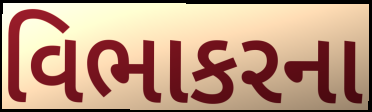
વિભાકરના